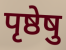
पृष्ठेषु